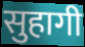
सुहागी